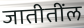
जातीतींल